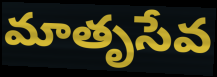
మాతృసేవ